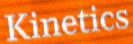
Kinetics